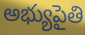
అభ్యుపైతి